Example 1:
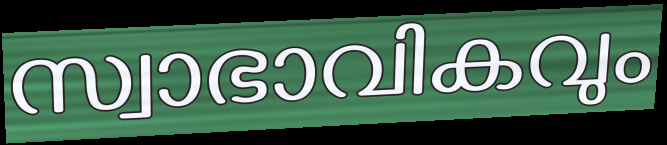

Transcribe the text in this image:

സ്വാഭാവികവും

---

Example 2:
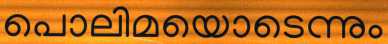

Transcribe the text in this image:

പൊലിമയൊടെന്നും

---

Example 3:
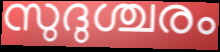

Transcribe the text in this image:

സുദുശ്ചരം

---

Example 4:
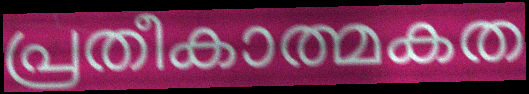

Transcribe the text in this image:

പ്രതീകാത്മകത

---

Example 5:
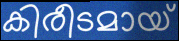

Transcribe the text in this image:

കിരീടമായ്